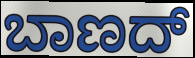
ಬಾಣದ್